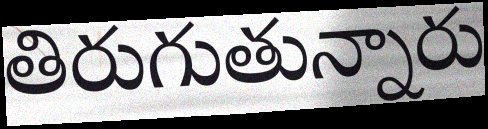
తిరుగుతున్నారు